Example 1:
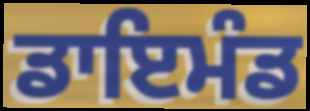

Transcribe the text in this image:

ਡਾਇਮੰਡ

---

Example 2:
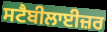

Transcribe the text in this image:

ਸਟੈਬੀਲਾਈਜ਼ਰ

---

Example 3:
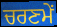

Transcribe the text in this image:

ਚਰਣਮੇਂ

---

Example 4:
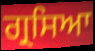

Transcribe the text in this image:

ਗ੍ਰਸਿਆ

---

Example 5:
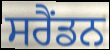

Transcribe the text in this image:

ਸਰੈਂਡਨ